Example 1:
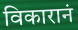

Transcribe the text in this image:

विकारानं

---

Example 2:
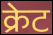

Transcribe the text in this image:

क्रेट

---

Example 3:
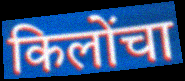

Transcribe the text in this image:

किलोंचा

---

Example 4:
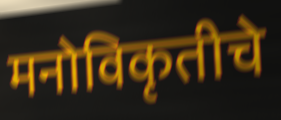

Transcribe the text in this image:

मनोविकृतीचे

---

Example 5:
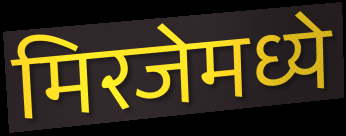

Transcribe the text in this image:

मिरजेमध्ये